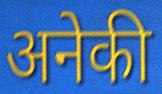
अनेकी